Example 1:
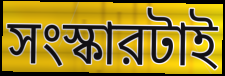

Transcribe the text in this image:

সংস্কারটাই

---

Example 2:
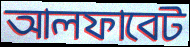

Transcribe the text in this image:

আলফাবেট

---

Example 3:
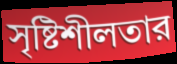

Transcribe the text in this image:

সৃষ্টিশীলতার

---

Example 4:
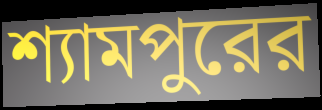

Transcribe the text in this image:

শ্যামপুরের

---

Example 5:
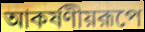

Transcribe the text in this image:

আকর্ষণীয়রূপে